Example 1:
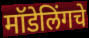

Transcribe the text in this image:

मॉडेलिंगचे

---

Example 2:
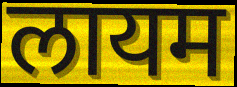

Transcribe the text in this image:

लायम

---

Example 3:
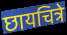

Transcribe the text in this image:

छायचित्रे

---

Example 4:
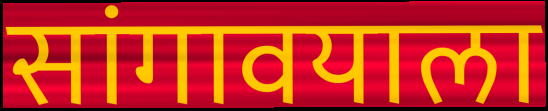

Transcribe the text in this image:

सांगावयाला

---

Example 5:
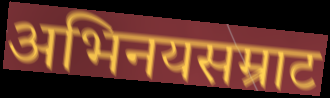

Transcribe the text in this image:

अभिनयसम्राट